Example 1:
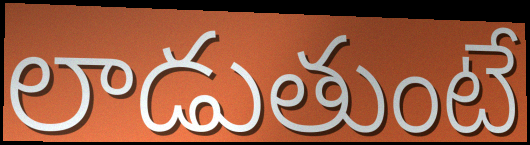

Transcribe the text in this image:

లాడుతుంటే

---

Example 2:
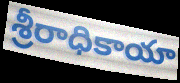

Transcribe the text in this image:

శ్రీరాధికాయా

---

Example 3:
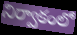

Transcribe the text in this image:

నిర్వాకంలో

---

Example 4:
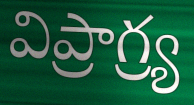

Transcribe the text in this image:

విప్రాగ్ర్య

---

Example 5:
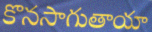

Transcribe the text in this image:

కొనసాగుతాయా